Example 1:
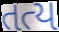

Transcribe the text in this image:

તત્ય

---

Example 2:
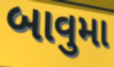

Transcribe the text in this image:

બાવુમા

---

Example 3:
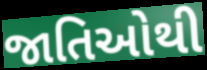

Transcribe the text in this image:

જાતિઓથી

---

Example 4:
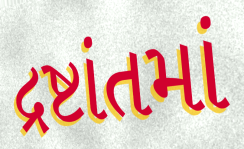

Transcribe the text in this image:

દ્રષ્ટાંતમાં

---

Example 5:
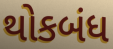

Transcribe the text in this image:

થોકબંધ